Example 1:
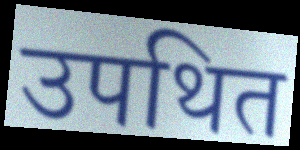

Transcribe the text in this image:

उपथित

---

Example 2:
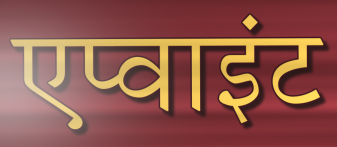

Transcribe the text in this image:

एप्वाइंट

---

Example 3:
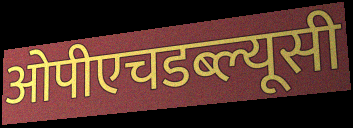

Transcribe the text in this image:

ओपीएचडब्ल्यूसी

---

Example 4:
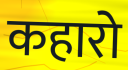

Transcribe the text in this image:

कहारो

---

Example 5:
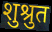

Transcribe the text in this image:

शुश्रुत